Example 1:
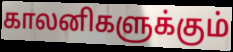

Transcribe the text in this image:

காலனிகளுக்கும்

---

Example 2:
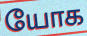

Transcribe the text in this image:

யோக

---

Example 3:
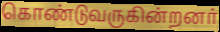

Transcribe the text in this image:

கொண்டுவருகின்றனர்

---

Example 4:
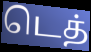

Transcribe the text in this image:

டெத்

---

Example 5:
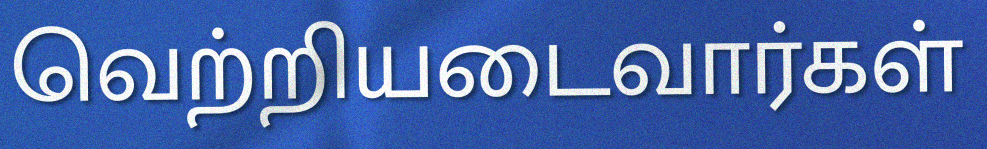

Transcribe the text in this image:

வெற்றியடைவார்கள்